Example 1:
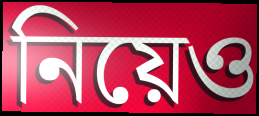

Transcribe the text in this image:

নিয়েও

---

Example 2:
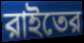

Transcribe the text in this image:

রাইতের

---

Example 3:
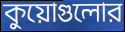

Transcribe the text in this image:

কুয়োগুলোর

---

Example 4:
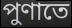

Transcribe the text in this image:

পুণাতে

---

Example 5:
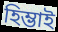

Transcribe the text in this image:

হিম্ভাই